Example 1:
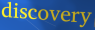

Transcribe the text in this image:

discovery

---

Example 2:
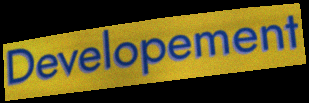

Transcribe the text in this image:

Developement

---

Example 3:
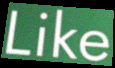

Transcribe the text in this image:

Like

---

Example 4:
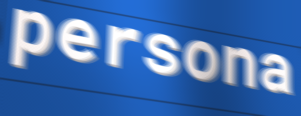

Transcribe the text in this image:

persona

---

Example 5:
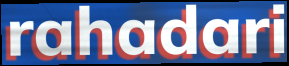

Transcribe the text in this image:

rahadari